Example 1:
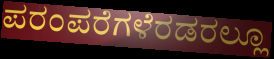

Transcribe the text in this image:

ಪರಂಪರೆಗಳೆರಡರಲ್ಲೂ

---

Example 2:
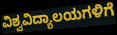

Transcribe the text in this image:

ವಿಶ್ವವಿದ್ಯಾಲಯಗಳಿಗೆ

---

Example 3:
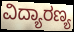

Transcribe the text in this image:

ವಿದ್ಯಾರಣ್ಯ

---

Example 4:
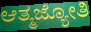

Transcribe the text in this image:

ಆತ್ಮಜ್ಯೋತಿ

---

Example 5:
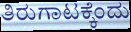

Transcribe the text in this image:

ತಿರುಗಾಟಕ್ಕೆಂದು